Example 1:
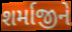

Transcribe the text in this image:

શર્માજીને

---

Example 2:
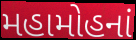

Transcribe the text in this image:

મહામોહનાં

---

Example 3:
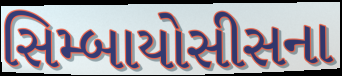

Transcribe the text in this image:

સિમ્બાયોસીસના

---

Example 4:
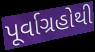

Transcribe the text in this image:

પૂર્વાગ્રહોથી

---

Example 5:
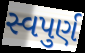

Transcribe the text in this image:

સ્વપુર્ણ